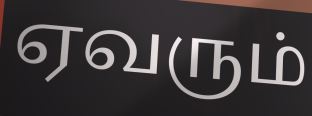
ஏவரும்